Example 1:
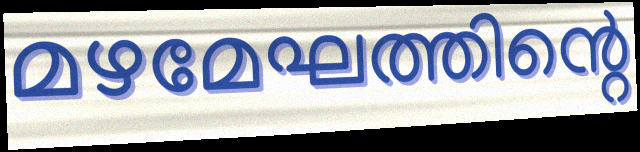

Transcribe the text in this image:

മഴമേഘത്തിന്റെ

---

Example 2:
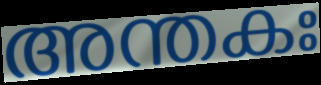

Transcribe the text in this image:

അന്തകഃ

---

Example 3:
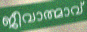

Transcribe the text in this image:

ജീവാത്മാവ്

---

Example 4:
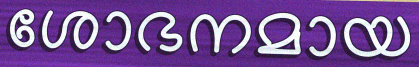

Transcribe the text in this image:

ശോഭനമായ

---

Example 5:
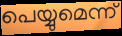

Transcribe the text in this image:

പെയ്യുമെന്ന്